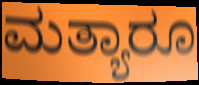
ಮತ್ಯಾರೂ